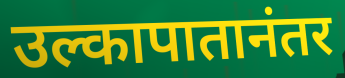
उल्कापातानंतर